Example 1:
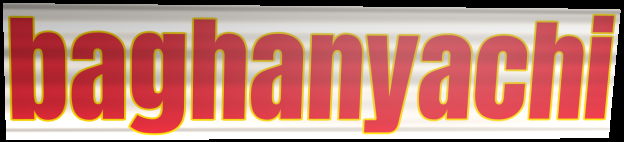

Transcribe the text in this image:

baghanyachi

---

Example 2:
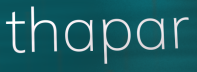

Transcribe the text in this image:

thapar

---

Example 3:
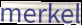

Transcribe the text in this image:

merkel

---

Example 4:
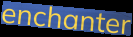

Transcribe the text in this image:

enchanter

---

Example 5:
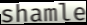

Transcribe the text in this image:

shamle